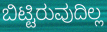
ಬಿಟ್ಟಿರುವುದಿಲ್ಲ